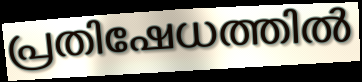
പ്രതിഷേധത്തിൽ